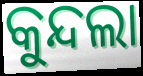
କୁନ୍ଦଲା